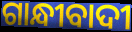
ଗାନ୍ଧୀବାଦୀ